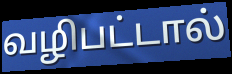
வழிபட்டால்